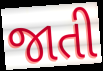
જાતી